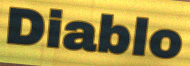
Diablo